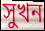
সুখন